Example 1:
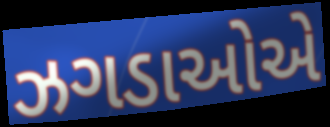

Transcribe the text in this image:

ઝગડાઓએ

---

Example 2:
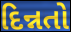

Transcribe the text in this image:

દિન્નતો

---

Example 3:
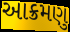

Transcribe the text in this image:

આક્રમણુ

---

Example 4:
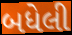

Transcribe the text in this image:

બધેલી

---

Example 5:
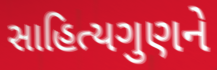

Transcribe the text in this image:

સાહિત્યગુણને